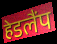
हेडलैंप